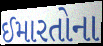
ઈમારતોના